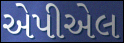
એપીએલ